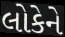
લોકેને